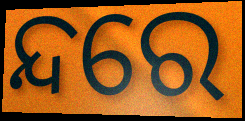
ନ୍ଦରେ